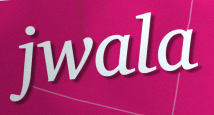
jwala